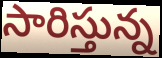
సారిస్తున్న